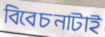
বিবেচনাটাই